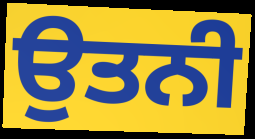
ਉਤਨੀ